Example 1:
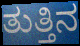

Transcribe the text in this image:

ತುತ್ತಿನ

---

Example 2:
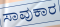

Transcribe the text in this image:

ಸಾವುಕಾರ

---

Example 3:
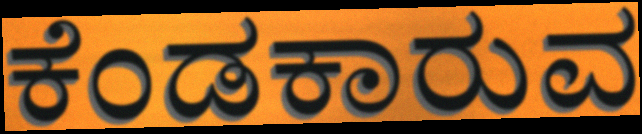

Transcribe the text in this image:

ಕೆಂಡಕಾರುವ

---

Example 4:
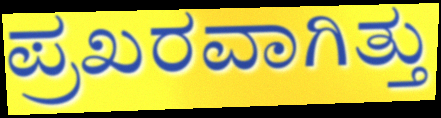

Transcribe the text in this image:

ಪ್ರಖರವಾಗಿತ್ತು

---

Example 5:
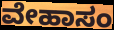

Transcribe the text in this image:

ವೇಹಾಸಂ